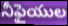
నీఫైయుల